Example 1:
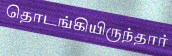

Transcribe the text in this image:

தொடங்கியிருந்தார்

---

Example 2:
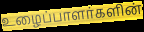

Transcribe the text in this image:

உழைப்பாளர்களின்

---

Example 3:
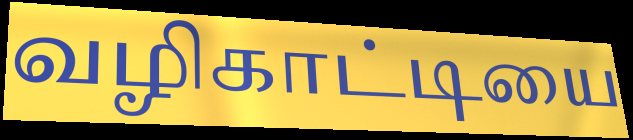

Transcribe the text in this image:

வழிகாட்டியை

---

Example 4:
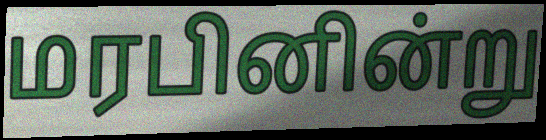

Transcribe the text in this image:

மரபினின்று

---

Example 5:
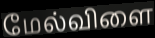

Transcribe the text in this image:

மேல்விளை